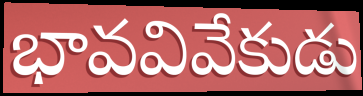
భావవివేకుడు